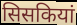
सिसकियां